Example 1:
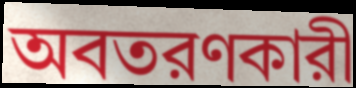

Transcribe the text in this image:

অবতরণকারী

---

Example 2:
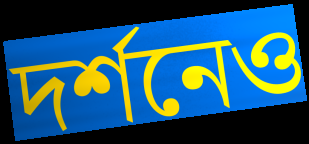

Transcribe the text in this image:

দর্শনেও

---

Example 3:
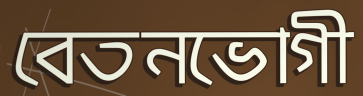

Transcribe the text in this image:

বেতনভোগী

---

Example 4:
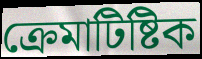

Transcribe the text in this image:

ক্রেমাটিষ্টিক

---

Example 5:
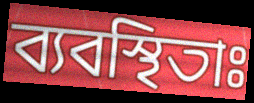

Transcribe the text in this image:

ব্যবস্থিতাঃ